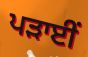
ਪੜਾਈਂ